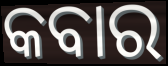
କବାର